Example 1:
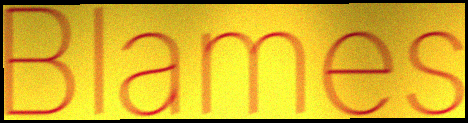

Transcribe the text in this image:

Blames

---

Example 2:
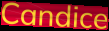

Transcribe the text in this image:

Candice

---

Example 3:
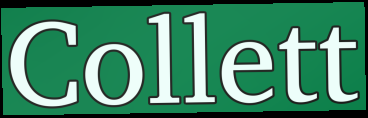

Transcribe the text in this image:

Collett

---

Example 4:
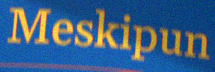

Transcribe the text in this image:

Meskipun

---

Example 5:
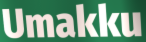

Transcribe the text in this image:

Umakku